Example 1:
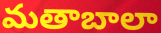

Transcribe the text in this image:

మతాబాలా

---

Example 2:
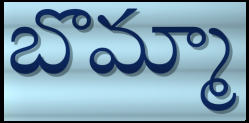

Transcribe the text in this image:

బొమ్మా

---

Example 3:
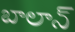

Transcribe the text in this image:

బాలాన్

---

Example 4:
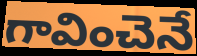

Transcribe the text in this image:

గావించెనే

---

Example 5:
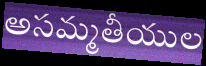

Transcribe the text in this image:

అసమ్మతీయుల